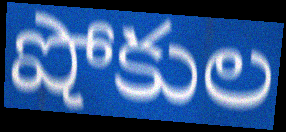
షోకుల